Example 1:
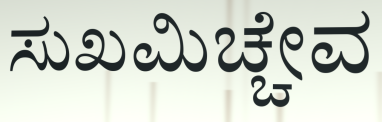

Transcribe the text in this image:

ಸುಖಮಿಚ್ಚೇವ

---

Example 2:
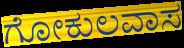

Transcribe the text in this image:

ಗೋಕುಲವಾಸ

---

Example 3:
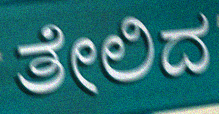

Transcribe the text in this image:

ತೇಲಿದ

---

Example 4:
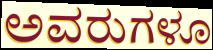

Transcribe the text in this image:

ಅವರುಗಳೂ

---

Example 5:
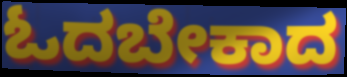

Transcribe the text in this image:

ಓದಬೇಕಾದ